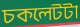
চকলেটটা